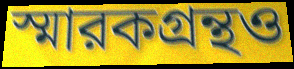
স্মারকগ্রন্থও